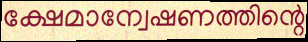
ക്ഷേമാന്വേഷണത്തിന്റെ